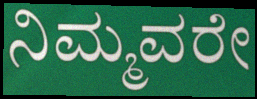
ನಿಮ್ಮವರೇ